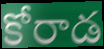
కోరాడ